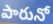
పారునో